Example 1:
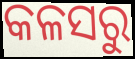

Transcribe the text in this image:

କଳସରୁ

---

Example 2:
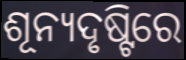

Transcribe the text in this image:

ଶୂନ୍ୟଦୃଷ୍ଟିରେ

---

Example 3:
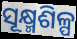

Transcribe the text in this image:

ସୂକ୍ଷ୍ମଶିଳ୍ପ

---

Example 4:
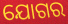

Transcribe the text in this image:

ଯୋଗର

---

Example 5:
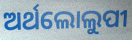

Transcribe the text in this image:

ଅର୍ଥଲୋଲୁପୀ